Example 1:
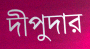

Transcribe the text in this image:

দীপুদার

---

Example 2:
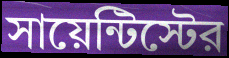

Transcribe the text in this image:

সায়েন্টিস্টের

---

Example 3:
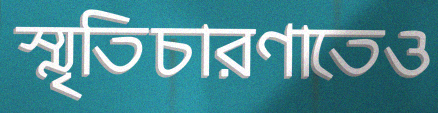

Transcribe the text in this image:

স্মৃতিচারণাতেও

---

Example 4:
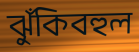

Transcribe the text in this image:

ঝুঁকিবহুল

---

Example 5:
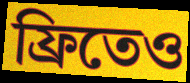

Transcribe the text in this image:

ফ্রিতেও